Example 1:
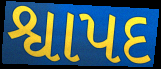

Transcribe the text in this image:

શ્વાપદ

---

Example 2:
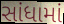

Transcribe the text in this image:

સાંધામાં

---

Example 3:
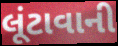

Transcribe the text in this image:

લૂંટાવાની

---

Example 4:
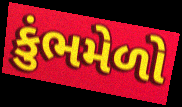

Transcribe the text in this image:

કુંભમેળો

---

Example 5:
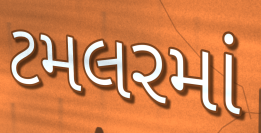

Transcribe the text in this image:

ટમલરમાં